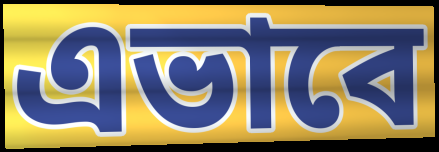
এভাবে